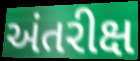
અંતરીક્ષ